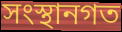
সংস্থানগত